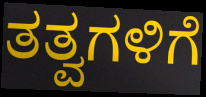
ತತ್ವಗಳಿಗೆ